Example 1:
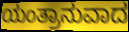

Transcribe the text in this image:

ಯಂತ್ರಾನುವಾದ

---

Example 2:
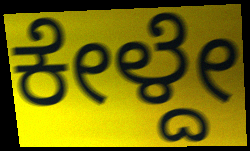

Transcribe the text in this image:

ಕೇಳ್ದೇ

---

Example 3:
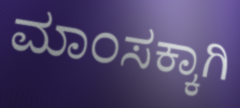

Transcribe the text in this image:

ಮಾಂಸಕ್ಕಾಗಿ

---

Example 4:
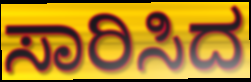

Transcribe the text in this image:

ಸಾರಿಸಿದ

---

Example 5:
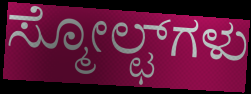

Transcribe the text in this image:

ಸ್ಮೋಲ್ಟ್‌ಗಳು